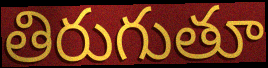
తిరుగుతూ